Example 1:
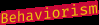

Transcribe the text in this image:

Behaviorism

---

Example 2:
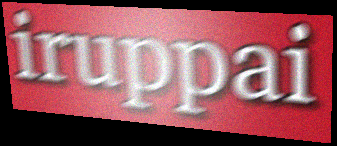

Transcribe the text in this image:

iruppai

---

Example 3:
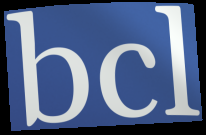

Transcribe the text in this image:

bcl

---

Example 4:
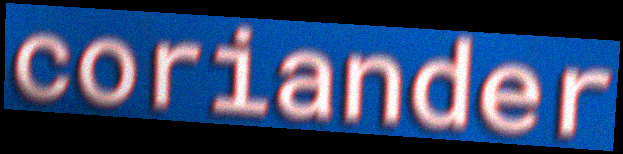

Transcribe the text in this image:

coriander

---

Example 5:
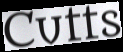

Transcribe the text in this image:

Cutts